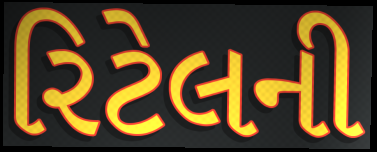
રિટેલની